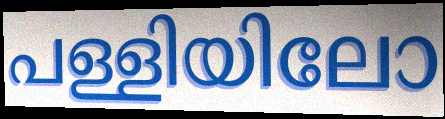
പള്ളിയിലോ